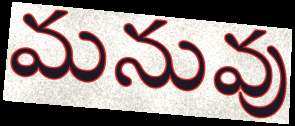
మనువు